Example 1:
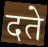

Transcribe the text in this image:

दते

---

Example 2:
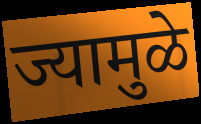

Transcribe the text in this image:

ज्यामुळे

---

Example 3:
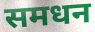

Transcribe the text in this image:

समधन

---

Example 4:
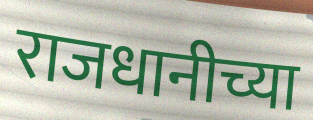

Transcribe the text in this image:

राजधानीच्या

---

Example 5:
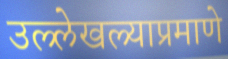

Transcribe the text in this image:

उल्लेखल्याप्रमाणे